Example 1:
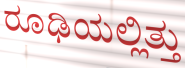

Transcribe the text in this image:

ರೂಢಿಯಲ್ಲಿತ್ತು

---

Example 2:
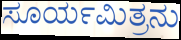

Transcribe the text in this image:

ಸೂರ್ಯಮಿತ್ರನು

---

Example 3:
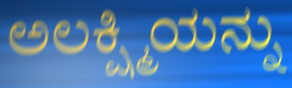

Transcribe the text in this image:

ಅಲಕ್ಷ್ಮಿಯನ್ನು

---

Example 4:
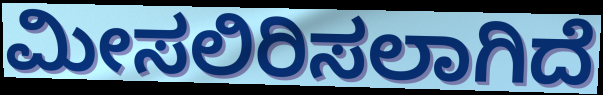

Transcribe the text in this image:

ಮೀಸಲಿರಿಸಲಾಗಿದೆ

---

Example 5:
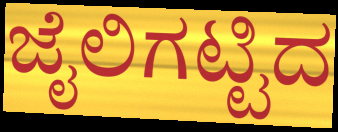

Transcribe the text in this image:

ಜೈಲಿಗಟ್ಟಿದ